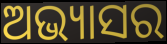
ଅଭ୍ୟାସର